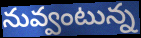
నువ్వంటున్న